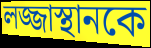
লজ্জাস্থানকে